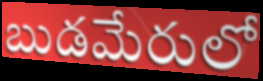
బుడమేరులో